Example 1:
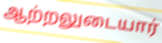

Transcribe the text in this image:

ஆற்றலுடையார்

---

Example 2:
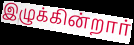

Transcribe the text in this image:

இழுக்கின்றார்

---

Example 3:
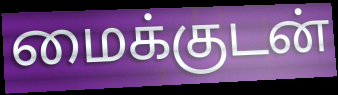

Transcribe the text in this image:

மைக்குடன்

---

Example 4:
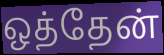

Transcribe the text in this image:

ஒத்தேன்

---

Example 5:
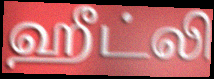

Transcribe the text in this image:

ஹீட்லி